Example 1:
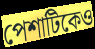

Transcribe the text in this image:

পেশাটিকেও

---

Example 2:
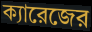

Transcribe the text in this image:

ক্যারেজের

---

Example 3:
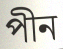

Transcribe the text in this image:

পীন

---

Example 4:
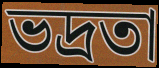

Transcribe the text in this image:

ভদ্রতা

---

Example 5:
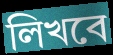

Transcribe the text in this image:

লিখবে